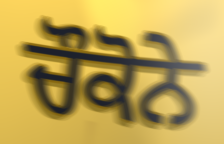
ਚੌਕੋਨੇ